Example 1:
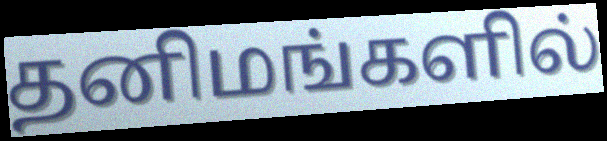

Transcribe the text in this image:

தனிமங்களில்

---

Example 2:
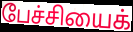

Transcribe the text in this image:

பேச்சியைக்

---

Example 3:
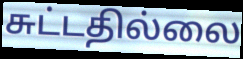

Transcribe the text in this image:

சுட்டதில்லை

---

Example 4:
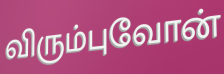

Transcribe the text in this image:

விரும்புவோன்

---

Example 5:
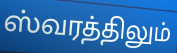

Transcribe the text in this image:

ஸ்வரத்திலும்